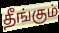
தீங்கும்